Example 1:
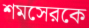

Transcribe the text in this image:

শমসেরকে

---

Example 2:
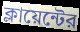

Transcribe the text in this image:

ক্লায়েন্টের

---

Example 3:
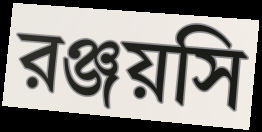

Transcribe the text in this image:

রঞ্জয়সি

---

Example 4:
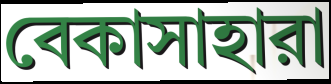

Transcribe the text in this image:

বেকাসাহারা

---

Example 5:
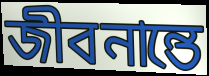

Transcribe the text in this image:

জীবনান্তে